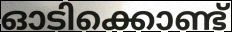
ഓടിക്കൊണ്ട്